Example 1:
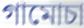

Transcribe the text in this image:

গামোচা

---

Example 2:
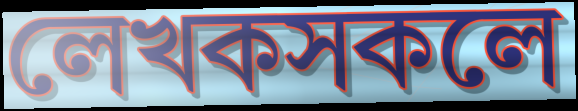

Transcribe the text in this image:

লেখকসকলে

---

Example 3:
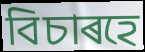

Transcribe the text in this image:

বিচাৰহে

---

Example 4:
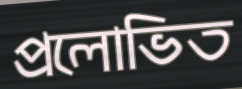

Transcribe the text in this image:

প্ৰলোভিত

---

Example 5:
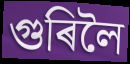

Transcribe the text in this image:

গুৰিলৈ